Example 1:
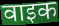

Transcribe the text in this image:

वाइक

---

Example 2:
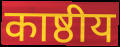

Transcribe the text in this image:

काष्ठीय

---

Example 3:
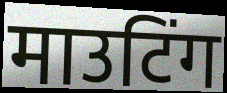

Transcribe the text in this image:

माउटिंग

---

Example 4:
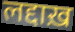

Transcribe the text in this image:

लद्दाख़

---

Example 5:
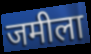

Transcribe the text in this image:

जमीला